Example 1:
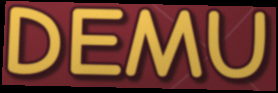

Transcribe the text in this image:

DEMU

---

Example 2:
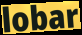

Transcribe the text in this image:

lobar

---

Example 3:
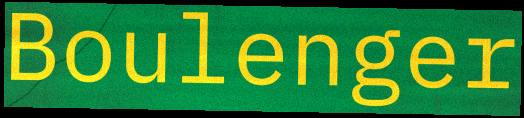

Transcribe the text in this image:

Boulenger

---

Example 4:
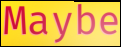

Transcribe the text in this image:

Maybe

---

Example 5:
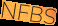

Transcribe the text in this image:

NFBS